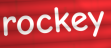
rockey